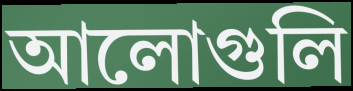
আলোগুলি